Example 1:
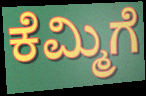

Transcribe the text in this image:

ಕೆಮ್ಮಿಗೆ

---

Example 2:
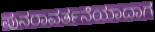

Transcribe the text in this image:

ಪುನರಾವರ್ತನೆಯಾದಾಗ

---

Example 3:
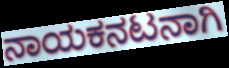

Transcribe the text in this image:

ನಾಯಕನಟನಾಗಿ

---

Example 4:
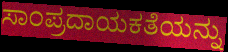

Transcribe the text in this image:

ಸಾಂಪ್ರದಾಯಕತೆಯನ್ನು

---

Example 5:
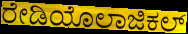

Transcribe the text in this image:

ರೇಡಿಯೊಲಾಜಿಕಲ್